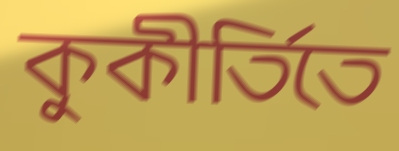
কুকীর্তিতে